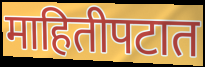
माहितीपटात